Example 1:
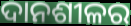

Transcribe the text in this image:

ଦାନଶୀଳର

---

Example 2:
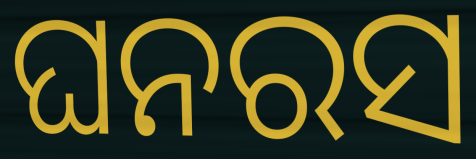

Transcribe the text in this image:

ଘନରସ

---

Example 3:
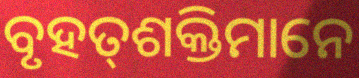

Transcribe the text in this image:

ବୃହତ୍‌ଶକ୍ତିମାନେ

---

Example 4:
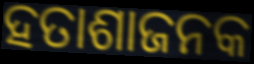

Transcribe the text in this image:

ହତାଶାଜନକ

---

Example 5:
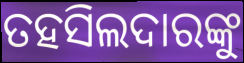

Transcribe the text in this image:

ତହସିଲଦାରଙ୍କୁ